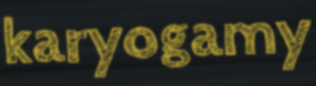
karyogamy